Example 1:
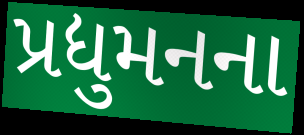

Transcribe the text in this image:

પ્રદ્યુમનના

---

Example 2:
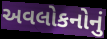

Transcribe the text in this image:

અવલોકનોનું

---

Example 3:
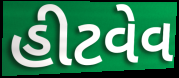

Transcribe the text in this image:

હીટવેવ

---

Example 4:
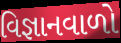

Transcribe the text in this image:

વિજ્ઞાનવાળો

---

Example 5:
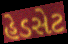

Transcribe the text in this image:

હેડસેટ